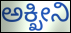
ಅಕ್ಖೀನಿ